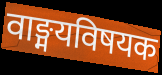
वाङ्मयविषयक